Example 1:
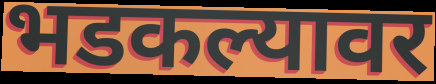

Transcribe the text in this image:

भडकल्यावर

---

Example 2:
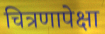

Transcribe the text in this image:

चित्रणापेक्षा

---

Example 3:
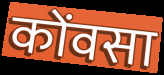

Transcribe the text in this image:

कोंवसा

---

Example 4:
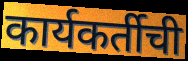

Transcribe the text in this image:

कार्यकर्तीची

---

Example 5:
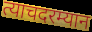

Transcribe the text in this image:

त्याचदरम्यान